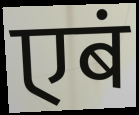
एबं